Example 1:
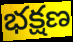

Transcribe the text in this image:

భక్షణ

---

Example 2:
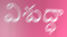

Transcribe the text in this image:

విశుద్ధా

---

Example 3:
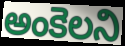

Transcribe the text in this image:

అంకెలని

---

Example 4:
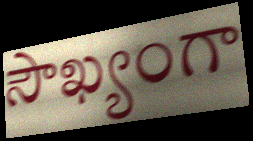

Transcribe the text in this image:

సౌఖ్యంగా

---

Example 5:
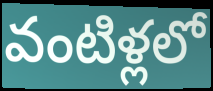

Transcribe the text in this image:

వంటిళ్లలో